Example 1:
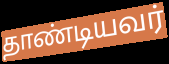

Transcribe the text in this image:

தாண்டியவர்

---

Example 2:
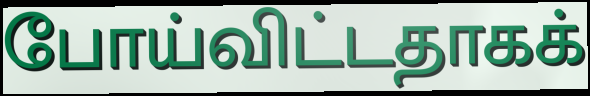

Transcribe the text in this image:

போய்விட்டதாகக்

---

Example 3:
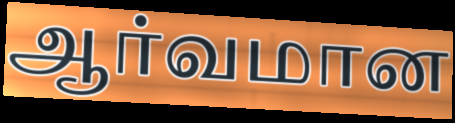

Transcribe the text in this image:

ஆர்வமான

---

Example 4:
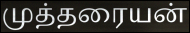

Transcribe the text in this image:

முத்தரையன்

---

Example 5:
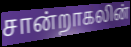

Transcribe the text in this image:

சான்றாகலின்